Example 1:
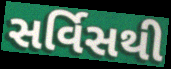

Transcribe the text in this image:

સર્વિસથી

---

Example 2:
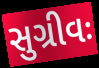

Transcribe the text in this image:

સુગ્રીવઃ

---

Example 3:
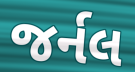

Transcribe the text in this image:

જર્નલ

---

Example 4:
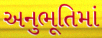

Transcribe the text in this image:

અનુભૂતિમાં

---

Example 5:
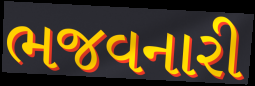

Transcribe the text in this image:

ભજવનારી